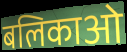
बलिकाओ